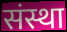
संस्था